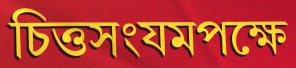
চিত্তসংযমপক্ষে